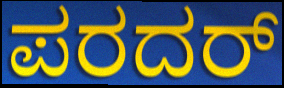
ಪರದರ್